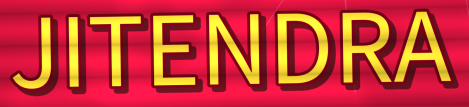
JITENDRA